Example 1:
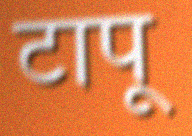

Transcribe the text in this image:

टापू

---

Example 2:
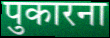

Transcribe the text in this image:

पुकारना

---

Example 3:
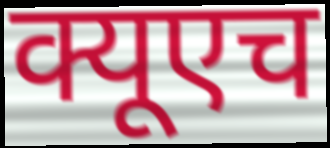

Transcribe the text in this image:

क्यूएच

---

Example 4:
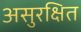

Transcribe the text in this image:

असुरक्षित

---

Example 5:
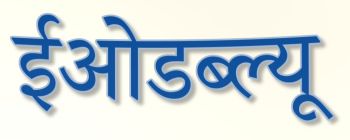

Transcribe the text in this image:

ईओडब्ल्यू